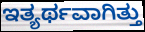
ಇತ್ಯರ್ಥವಾಗಿತ್ತು